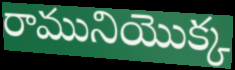
రామునియొక్క